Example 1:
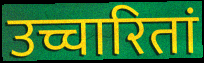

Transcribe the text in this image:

उच्चारितां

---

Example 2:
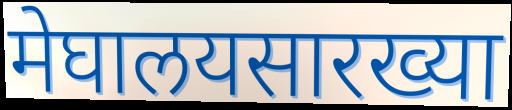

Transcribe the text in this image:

मेघालयसारख्या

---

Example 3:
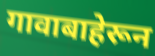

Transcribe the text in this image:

गावाबाहेरून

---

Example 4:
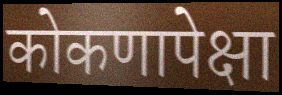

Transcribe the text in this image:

कोकणापेक्षा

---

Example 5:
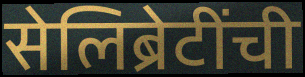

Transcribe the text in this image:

सेलिब्रेटींची